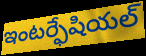
ఇంటర్ఫేషియల్